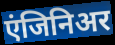
एंजिनिअर